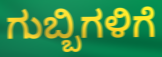
ಗುಬ್ಬಿಗಳಿಗೆ